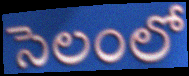
సెలంలో